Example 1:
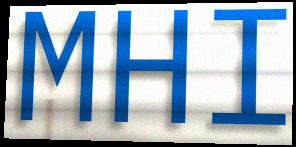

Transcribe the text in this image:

MHI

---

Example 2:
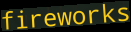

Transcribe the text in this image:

fireworks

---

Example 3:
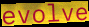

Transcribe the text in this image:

evolve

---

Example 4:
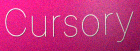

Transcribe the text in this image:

Cursory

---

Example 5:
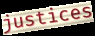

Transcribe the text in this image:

justices